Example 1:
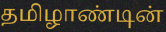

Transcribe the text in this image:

தமிழாண்டின்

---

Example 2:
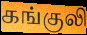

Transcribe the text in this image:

கங்குலி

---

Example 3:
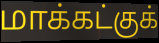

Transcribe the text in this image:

மாக்கட்குக்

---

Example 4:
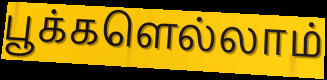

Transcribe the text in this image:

பூக்களெல்லாம்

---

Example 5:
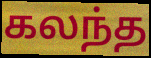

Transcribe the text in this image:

கலந்த